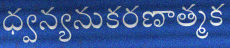
ధ్వన్యనుకరణాత్మక